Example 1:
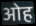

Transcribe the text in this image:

ओह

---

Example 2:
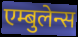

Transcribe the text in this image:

एम्बुलेन्स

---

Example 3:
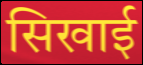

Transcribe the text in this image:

सिखाई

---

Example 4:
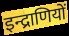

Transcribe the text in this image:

इन्द्राणियों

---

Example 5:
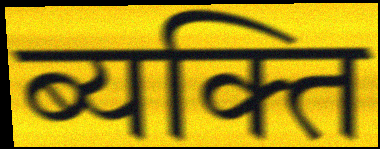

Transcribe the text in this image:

ब्यक्ति